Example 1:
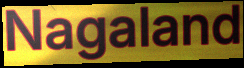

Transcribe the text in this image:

Nagaland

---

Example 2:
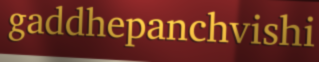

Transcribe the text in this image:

gaddhepanchvishi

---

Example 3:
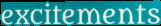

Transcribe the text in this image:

excitements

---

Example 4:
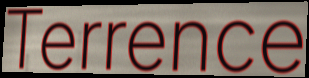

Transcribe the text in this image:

Terrence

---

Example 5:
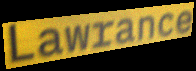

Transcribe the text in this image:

Lawrance